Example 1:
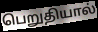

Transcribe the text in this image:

பெறுதியால்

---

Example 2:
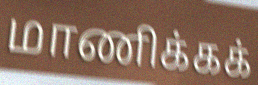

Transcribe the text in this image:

மாணிக்கக்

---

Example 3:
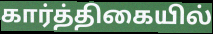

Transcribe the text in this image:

கார்த்திகையில்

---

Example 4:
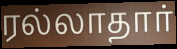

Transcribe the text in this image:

ரல்லாதார்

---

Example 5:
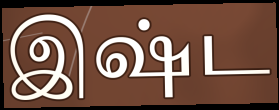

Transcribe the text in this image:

இஷ்ட